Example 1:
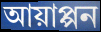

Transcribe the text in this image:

আয়াপ্পন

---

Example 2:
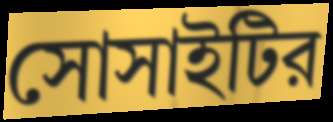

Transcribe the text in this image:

সোসাইটির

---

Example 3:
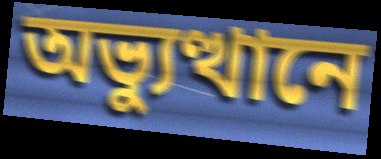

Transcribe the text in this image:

অভ্যুত্থানে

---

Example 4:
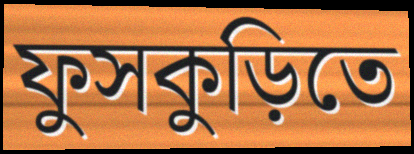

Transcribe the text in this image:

ফুসকুড়িতে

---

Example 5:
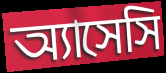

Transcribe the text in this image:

অ্যাসেসি